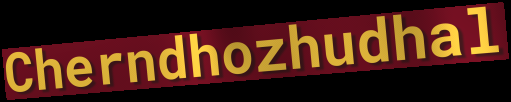
Cherndhozhudhal